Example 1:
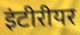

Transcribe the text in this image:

इंटीरीयर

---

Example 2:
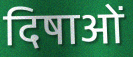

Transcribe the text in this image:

दिषाओं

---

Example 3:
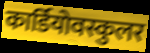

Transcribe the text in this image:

कार्डियोवस्कुलर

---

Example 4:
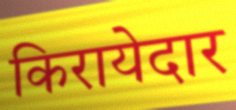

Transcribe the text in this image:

किरायेदार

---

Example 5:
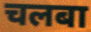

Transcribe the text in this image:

चलबा